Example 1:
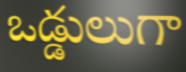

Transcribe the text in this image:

ఒడ్డులుగా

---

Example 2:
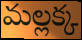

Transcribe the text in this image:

మల్లక్క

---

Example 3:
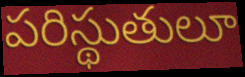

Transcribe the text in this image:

పరిస్థుతులూ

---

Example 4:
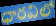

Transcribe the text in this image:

ధారవిలో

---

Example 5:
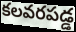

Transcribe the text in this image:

కలవరపడ్డ